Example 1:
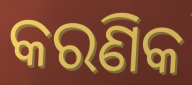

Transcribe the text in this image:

କରଣିକ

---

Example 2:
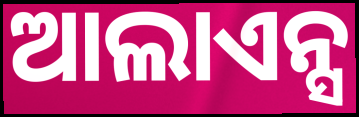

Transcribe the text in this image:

ଆଲାଏନ୍ସ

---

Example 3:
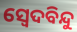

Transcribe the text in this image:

ସ୍ୱେଦବିନ୍ଦୁ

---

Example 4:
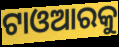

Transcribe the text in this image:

ଟାଓଆରକୁ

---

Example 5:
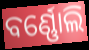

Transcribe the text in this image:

ବର୍ଣ୍ଣୋଲି